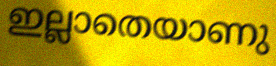
ഇല്ലാതെയാണു